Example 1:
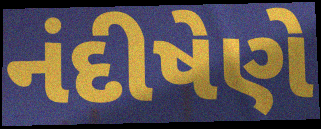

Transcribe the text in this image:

નંદીષેણે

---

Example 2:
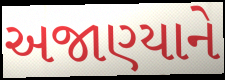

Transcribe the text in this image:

અજાણ્યાને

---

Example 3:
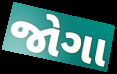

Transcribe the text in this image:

જોગા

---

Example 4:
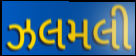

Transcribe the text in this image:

ઝલમલી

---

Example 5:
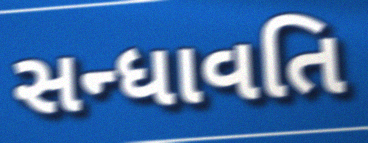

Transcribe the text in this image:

સન્ધાવતિ